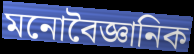
মনোবৈজ্ঞানিক